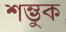
শম্ভুক